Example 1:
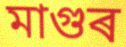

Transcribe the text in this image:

মাগুৰ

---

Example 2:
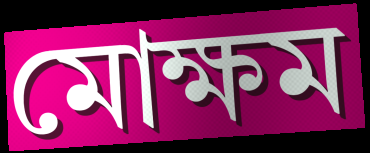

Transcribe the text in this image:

মোক্ষম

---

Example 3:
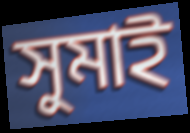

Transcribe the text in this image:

সুমাই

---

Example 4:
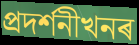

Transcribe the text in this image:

প্ৰদৰ্শনীখনৰ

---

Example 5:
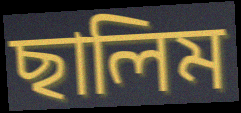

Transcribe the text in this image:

ছালিম